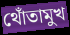
থোঁতামুখ